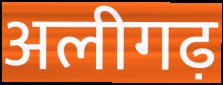
अलीगढ़